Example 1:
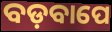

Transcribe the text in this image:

ବଡ଼ବାପେ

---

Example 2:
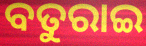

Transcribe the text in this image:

ବତୁରାଇ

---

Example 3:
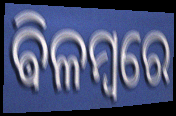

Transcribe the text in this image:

ଵିଳମ୍ବରେ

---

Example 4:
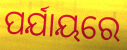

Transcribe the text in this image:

ପର୍ଯାୟରେ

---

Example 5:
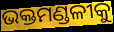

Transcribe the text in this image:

ଭକ୍ତମଣ୍ଡଳୀକୁ